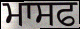
ਮਾਸਫ